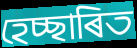
হেচ্ছাৰিত